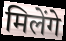
मिलेंगे